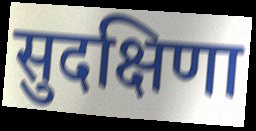
सुदक्षिणा